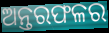
ଅନ୍ତରଫଳର